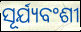
ସୂର୍ଯ୍ୟବଂଶୀ